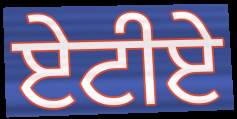
ਏਟੀਏ